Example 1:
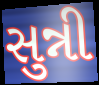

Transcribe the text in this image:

સુન્ની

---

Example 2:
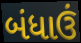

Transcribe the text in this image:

બંધાઉં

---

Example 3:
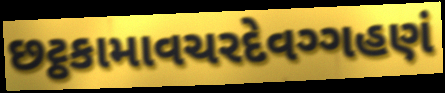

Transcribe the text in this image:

છટ્ઠકામાવચરદેવગ્ગહણં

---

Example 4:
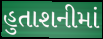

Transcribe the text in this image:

હુતાશનીમાં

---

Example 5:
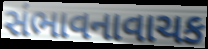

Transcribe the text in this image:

સંભાવનાવાચક